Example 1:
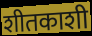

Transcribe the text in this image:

शीतकाशी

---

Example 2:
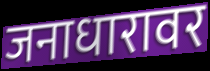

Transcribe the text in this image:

जनाधारावर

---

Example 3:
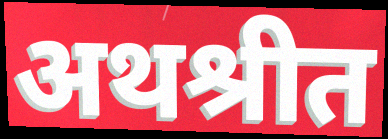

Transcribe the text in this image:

अथश्रीत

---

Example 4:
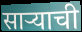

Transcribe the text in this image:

साऱ्याची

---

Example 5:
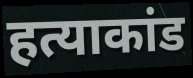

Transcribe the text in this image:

हत्याकांड